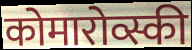
कोमारोव्स्की